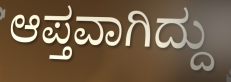
ಆಪ್ತವಾಗಿದ್ದು